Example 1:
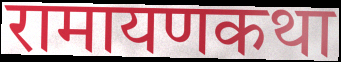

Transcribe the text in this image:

रामायणकथा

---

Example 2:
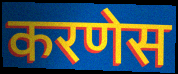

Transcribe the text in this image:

करणेस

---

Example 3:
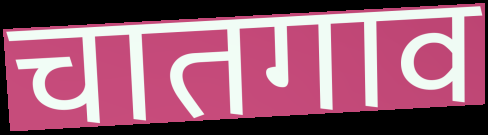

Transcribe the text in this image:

चातगाव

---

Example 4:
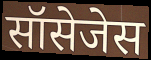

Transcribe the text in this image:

सॉसेजेस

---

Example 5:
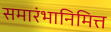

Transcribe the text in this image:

समारंभानिमित्त